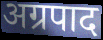
अग्रपाद